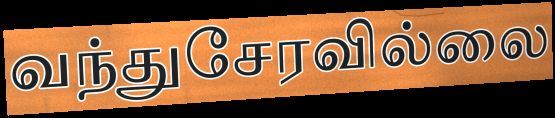
வந்துசேரவில்லை